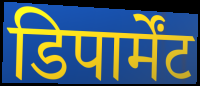
डिपार्मेंट